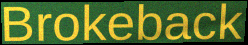
Brokeback